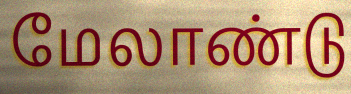
மேலாண்டு